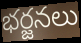
భర్జనలు